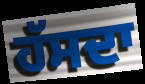
ਹੱਸਦਾ